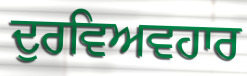
ਦੁਰਵਿਅਵਹਾਰ